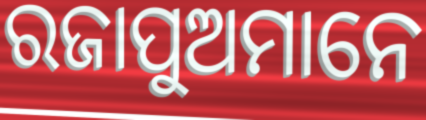
ରଜାପୁଅମାନେ